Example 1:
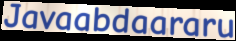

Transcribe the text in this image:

Javaabdaararu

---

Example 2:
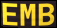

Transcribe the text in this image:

EMB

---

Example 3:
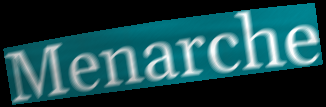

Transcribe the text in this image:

Menarche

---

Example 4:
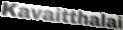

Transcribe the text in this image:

Kavaitthalai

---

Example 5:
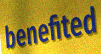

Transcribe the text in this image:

benefited